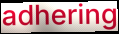
adhering